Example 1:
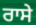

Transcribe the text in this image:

ਰਾਸੇ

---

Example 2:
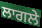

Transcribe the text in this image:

ਲਾਗਲੇ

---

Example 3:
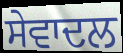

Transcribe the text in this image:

ਸੇਵਾਦਲ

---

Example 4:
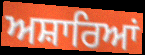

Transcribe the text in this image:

ਅਸ਼ਾਰਿਆਂ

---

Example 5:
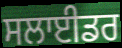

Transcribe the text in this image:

ਸਲਾਈਡਰ